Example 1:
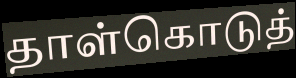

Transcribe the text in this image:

தாள்கொடுத்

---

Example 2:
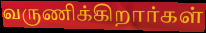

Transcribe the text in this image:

வருணிக்கிறார்கள்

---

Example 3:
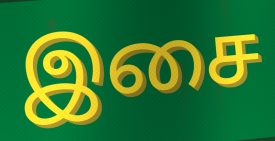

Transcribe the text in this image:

இசை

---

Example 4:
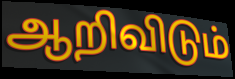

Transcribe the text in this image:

ஆறிவிடும்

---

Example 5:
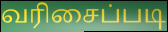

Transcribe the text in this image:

வரிசைப்படி